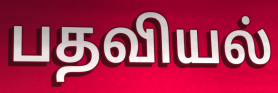
பதவியல்